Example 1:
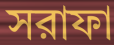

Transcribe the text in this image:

সরাফা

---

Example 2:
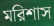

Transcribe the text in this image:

মরিশাস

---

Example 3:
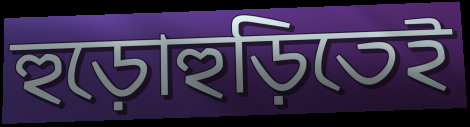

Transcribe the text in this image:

হুড়োহুড়িতেই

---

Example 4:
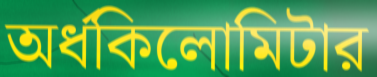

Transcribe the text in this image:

অর্ধকিলোমিটার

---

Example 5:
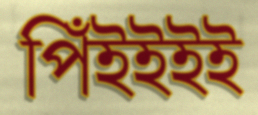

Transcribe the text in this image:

পিঁইইইই